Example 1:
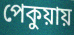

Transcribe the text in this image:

পেকুয়ায়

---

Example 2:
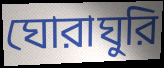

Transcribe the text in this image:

ঘোরাঘুরি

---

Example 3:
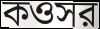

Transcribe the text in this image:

কওসর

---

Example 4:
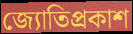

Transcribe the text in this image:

জ্যোতিপ্রকাশ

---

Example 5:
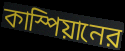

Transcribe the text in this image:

কাস্পিয়ানের